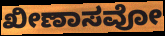
ಖೀಣಾಸವೋ